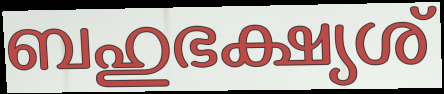
ബഹുഭക്ഷ്യശ്